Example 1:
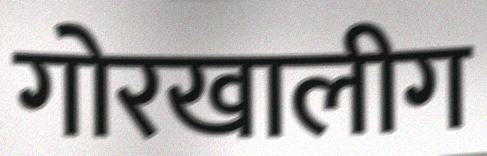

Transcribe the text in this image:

गोरखालीग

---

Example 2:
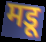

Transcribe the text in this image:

मडू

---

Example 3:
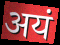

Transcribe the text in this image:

अयं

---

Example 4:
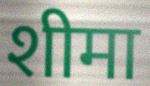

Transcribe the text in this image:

शीमा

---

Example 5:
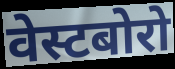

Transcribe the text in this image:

वेस्टबोरो